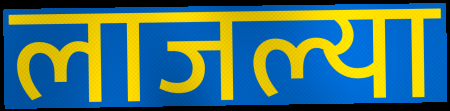
लाजल्या